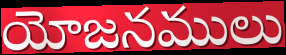
యోజనములు